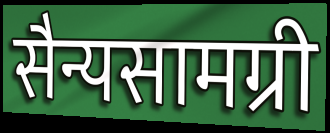
सैन्यसामग्री